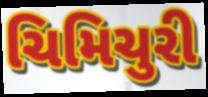
ચિમિચુરી